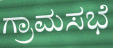
ಗ್ರಾಮಸಭೆ